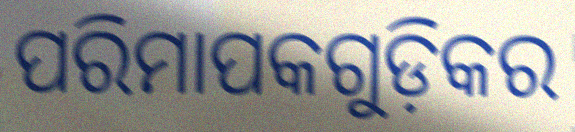
ପରିମାପକଗୁଡ଼ିକର